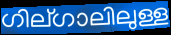
ഗില്ഗാലിലുള്ള